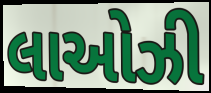
લાઓઝી